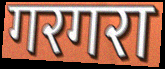
गरगरा